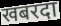
खबरदा